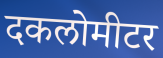
दकलोमीटर